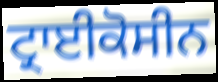
ਟ੍ਰਾਈਕੋਸੀਨ